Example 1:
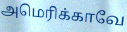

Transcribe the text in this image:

அமெரிக்காவே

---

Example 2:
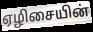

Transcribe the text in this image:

ஏழிசையின்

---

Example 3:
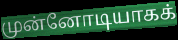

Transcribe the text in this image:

முன்னோடியாகக்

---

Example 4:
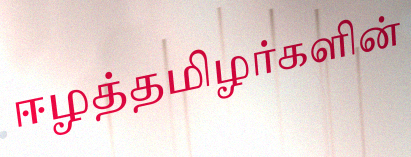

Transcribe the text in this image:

ஈழத்தமிழர்களின்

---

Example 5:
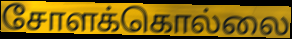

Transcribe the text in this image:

சோளக்கொல்லை